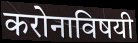
करोनाविषयी